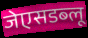
जेएसडब्‍लू